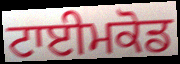
ਟਾਈਮਕੋਡ